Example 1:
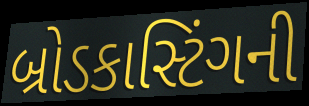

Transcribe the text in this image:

બ્રોડકાસ્ટિંગની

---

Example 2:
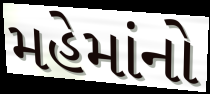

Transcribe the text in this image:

મહેમાંનો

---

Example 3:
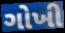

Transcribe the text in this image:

ગોખી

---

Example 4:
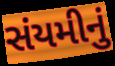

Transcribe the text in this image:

સંયમીનું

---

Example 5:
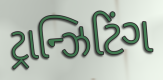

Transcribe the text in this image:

ટ્રાન્ઝિટિંગ